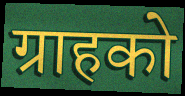
ग्राहको